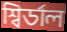
শ্বিৰ্ডাল